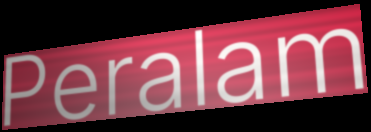
Peralam